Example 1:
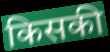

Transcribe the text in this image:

किसकी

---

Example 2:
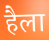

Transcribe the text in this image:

हैला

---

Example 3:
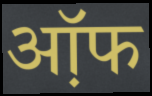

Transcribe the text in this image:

ऑ़फ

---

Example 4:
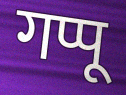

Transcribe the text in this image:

गप्पू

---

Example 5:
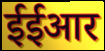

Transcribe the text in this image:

ईईआर